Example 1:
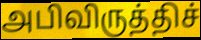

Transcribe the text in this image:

அபிவிருத்திச்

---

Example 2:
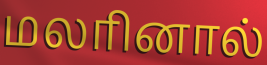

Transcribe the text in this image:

மலரினால்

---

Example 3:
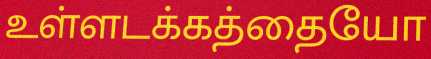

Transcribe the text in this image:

உள்ளடக்கத்தையோ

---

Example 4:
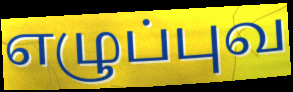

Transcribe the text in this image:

எழுப்புவ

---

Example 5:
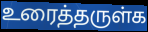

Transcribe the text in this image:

உரைத்தருள்க